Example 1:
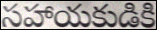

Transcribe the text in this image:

సహాయకుడికి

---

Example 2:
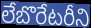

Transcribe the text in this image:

లేబొరేటరీని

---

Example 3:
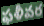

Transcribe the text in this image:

ఫళీవర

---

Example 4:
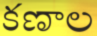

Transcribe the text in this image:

కణాల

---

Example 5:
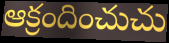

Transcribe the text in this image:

ఆక్రందించుచు